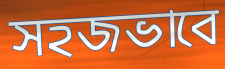
সহজভাবে